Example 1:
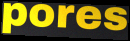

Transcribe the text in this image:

pores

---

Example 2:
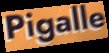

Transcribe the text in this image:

Pigalle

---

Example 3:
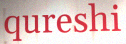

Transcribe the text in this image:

qureshi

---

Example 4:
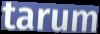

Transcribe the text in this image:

tarum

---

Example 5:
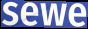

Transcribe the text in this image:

sewe